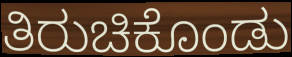
ತಿರುಚಿಕೊಂಡು